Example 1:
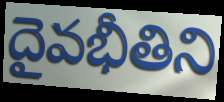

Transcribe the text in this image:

దైవభీతిని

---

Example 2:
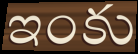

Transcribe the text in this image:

ఇంకు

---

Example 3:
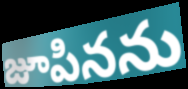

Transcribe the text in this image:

జూపినను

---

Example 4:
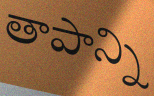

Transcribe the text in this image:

తాపాన్ని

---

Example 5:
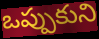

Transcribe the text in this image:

ఒప్పుకుని